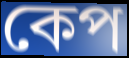
কেপ